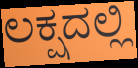
ಲಕ್ಷದಲ್ಲಿ